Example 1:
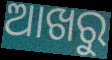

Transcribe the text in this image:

ଆଖରୁ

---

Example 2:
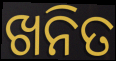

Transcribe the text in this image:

ଖନିତ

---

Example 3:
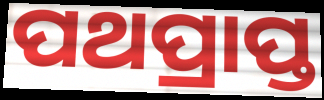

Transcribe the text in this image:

ପଥପ୍ରାପ୍ତ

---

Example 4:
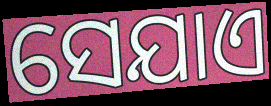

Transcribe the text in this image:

ସେଯାଏ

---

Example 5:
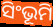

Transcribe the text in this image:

ସିଂଭୂମି